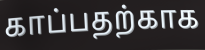
காப்பதற்காக